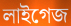
লাইগেজ